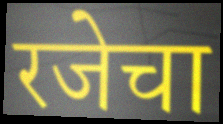
रजेचा